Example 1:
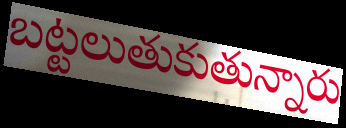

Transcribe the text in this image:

బట్టలుతుకుతున్నారు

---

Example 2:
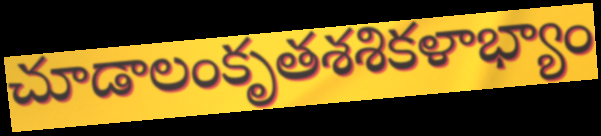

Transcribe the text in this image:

చూడాలంకృతశశికళాభ్యాం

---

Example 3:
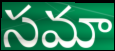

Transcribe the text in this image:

సమా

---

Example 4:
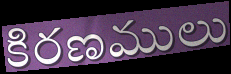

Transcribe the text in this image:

కిరణములు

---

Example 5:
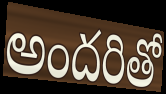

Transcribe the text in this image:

అందరితో